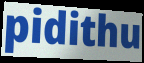
pidithu